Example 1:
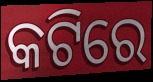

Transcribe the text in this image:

କଟିରେ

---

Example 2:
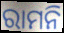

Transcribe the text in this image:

ରାମନି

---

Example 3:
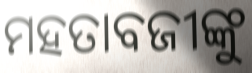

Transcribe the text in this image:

ମହତାବଜୀଙ୍କୁ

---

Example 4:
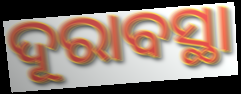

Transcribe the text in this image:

ଦୂରାବସ୍ଥା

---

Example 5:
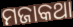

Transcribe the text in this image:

ମଜାକଥା